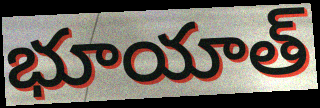
భూయాత్